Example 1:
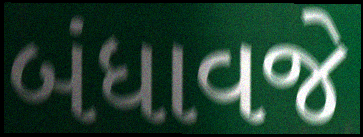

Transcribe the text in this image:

બંધાવજે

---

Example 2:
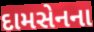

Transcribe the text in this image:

દામસેનના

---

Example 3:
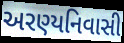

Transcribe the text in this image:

અરણ્યનિવાસી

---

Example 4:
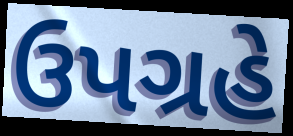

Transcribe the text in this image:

ઉપગ્રહે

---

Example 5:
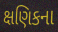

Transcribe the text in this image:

ક્ષણિકના